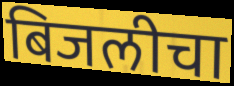
बिजलीचा